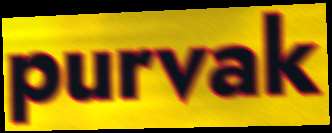
purvak